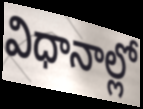
విధానాల్లో